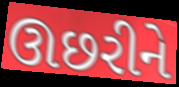
ઊછરીને